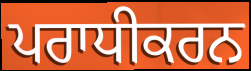
ਪਰਾਧੀਕਰਨ